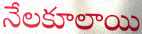
నేలకూలాయి